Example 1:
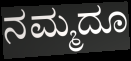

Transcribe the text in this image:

ನಮ್ಮದೂ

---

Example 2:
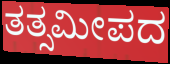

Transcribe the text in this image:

ತತ್ಸಮೀಪದ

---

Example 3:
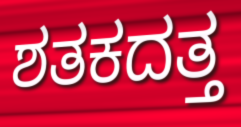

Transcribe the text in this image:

ಶತಕದತ್ತ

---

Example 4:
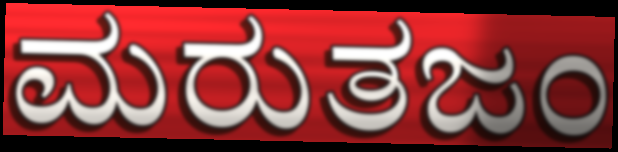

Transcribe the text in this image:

ಮರುತಜಂ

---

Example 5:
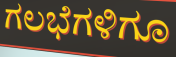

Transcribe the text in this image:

ಗಲಭೆಗಳಿಗೂ